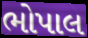
ભોપાલ